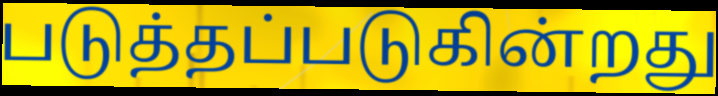
படுத்தப்படுகின்றது